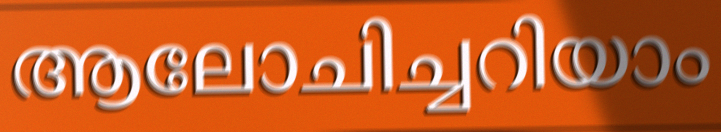
ആലോചിച്ചറിയാം